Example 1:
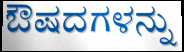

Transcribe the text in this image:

ಔಷದಗಳನ್ನು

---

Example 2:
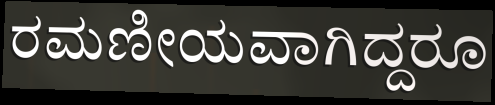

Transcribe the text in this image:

ರಮಣೀಯವಾಗಿದ್ದರೂ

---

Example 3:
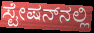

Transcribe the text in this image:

ಸ್ಟೇಷನ್‌ನಲ್ಲಿ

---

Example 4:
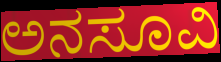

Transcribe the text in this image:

ಅನಸೂವಿ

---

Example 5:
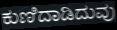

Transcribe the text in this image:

ಕುಣಿದಾಡಿದುವು